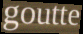
goutte